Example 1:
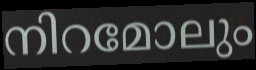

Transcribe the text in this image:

നിറമോലും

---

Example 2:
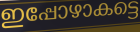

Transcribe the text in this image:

ഇപ്പോഴാകട്ടെ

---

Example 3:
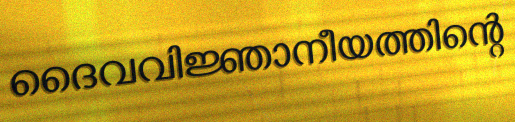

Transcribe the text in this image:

ദൈവവിജ്ഞാനീയത്തിന്റെ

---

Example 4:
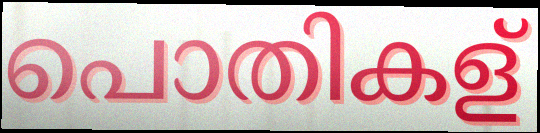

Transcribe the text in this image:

പൊതികള്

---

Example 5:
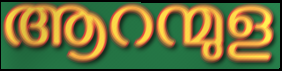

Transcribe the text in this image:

ആറന്മുള